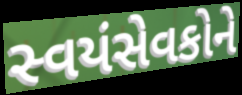
સ્વયંસેવકોને